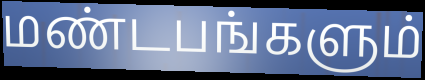
மண்டபங்களும்